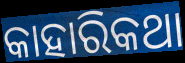
କାହାରିକଥା